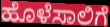
ಹೊಳೆಸಾಲಿಗೆ